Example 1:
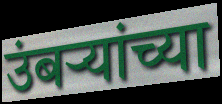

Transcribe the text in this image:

उंबऱ्यांच्या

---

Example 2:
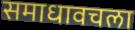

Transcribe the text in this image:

समाधावचला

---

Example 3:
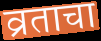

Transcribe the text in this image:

व्रताचा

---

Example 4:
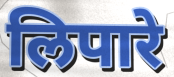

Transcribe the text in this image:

लिपारे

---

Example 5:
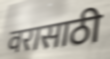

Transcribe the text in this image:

वरासाठी